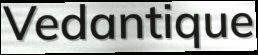
Vedantique